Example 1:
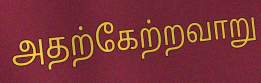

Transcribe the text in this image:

அதற்கேற்றவாறு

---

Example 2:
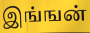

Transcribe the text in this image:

இங்ஙன்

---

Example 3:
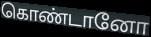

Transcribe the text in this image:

கொண்டானோ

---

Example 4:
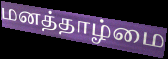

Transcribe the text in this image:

மனத்தாழ்மை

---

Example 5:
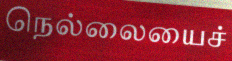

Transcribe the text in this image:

நெல்லையைச்